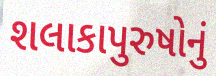
શલાકાપુરુષોનું